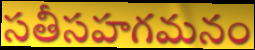
సతీసహగమనం